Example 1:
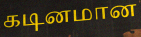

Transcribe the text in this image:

கடினமான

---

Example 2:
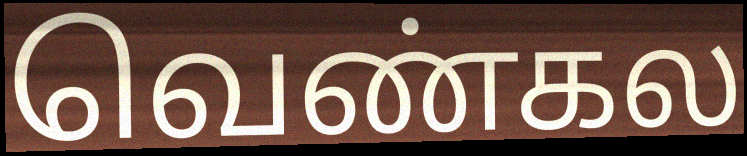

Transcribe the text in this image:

வெண்கல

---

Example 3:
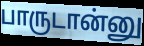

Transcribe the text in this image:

பாருடான்னு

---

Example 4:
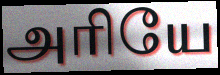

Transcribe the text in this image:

அரியே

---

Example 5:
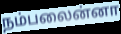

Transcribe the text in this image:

நம்பலைன்னா